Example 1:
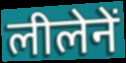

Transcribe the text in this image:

लीलेनें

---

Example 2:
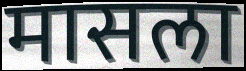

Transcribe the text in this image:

मासला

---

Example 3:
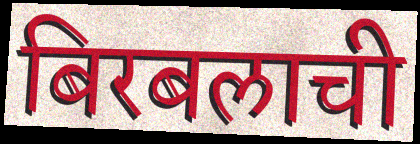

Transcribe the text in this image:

बिरबलाची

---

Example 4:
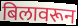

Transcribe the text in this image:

बिलावरून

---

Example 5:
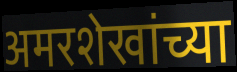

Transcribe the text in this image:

अमरशेखांच्या